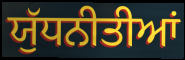
ਯੁੱਧਨੀਤੀਆਂ